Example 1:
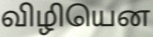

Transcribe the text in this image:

விழியென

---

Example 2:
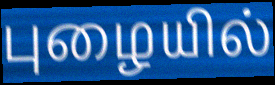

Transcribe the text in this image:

புழையில்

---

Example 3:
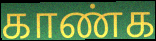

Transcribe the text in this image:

காண்க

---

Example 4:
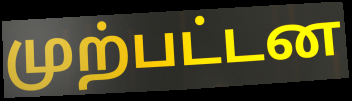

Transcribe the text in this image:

முற்பட்டன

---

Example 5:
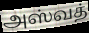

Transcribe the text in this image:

அஸ்வத்